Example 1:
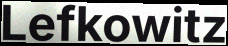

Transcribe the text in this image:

Lefkowitz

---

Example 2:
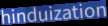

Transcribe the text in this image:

hinduization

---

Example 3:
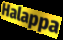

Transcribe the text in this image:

Halappa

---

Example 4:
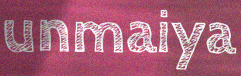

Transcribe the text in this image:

unmaiya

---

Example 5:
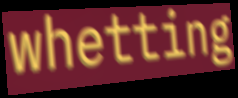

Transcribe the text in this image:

whetting